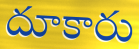
దూకారు